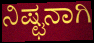
ನಿಷ್ಟನಾಗಿ